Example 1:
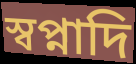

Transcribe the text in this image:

স্বপ্নাদি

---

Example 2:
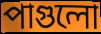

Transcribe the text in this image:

পাগুলো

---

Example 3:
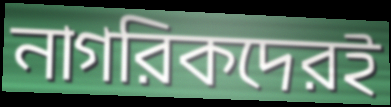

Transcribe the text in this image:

নাগরিকদেরই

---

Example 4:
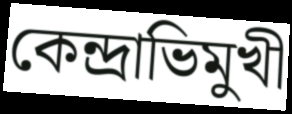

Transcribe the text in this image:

কেন্দ্রাভিমুখী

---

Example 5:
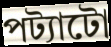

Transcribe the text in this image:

পট্যাটো